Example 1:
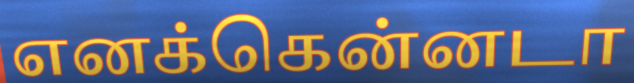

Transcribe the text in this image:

எனக்கென்னடா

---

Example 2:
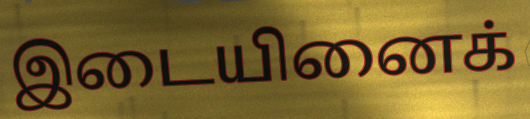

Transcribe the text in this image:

இடையினைக்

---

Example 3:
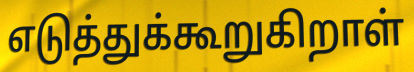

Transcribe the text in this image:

எடுத்துக்கூறுகிறாள்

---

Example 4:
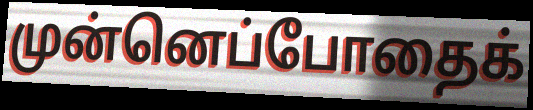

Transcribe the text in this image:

முன்னெப்போதைக்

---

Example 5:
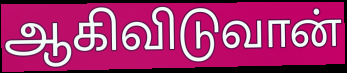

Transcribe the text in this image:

ஆகிவிடுவான்